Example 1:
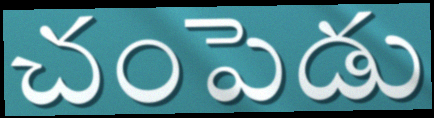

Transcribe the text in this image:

చంపెడు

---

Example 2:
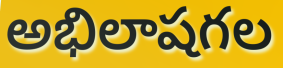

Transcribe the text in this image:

అభిలాషగల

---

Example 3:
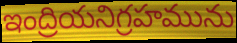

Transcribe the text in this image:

ఇంద్రియనిగ్రహమును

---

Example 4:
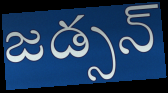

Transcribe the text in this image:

జడ్సన్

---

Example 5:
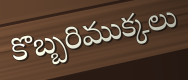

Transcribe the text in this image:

కొబ్బరిముక్కలు